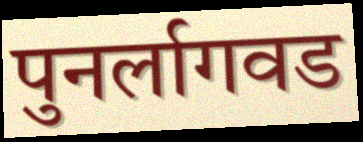
पुनर्लागवड